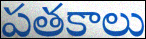
పతకాలు